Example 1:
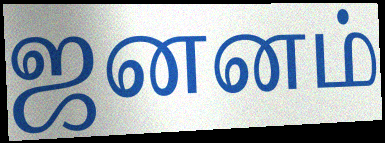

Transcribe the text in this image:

ஜனனம்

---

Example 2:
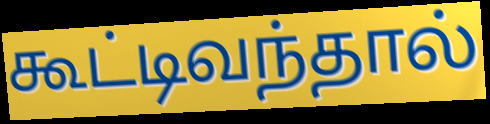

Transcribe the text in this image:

கூட்டிவந்தால்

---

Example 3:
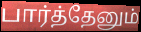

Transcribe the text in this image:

பார்த்தேனும்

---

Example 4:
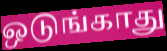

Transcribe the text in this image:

ஒடுங்காது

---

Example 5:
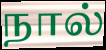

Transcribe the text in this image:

நால்